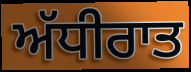
ਅੱਧੀਰਾਤ